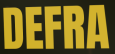
DEFRA